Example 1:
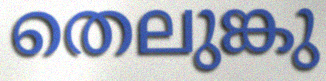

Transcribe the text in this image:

തെലുങ്കു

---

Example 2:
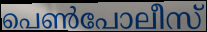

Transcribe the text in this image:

പെൺപോലീസ്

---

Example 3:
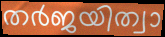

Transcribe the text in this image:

തർജയിത്വാ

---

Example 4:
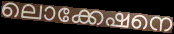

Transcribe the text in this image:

ലൊക്കേഷനെ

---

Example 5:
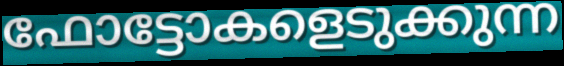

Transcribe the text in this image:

ഫോട്ടോകളെടുക്കുന്ന